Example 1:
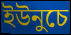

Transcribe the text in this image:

ইউনুচে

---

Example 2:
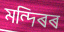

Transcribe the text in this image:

মন্দিৰৰ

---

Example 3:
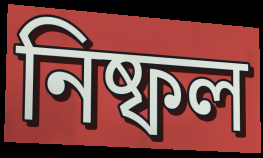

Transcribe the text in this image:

নিষ্ফল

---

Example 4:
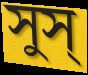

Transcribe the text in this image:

সুস্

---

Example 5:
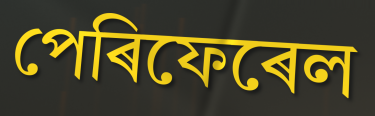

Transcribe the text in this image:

পেৰিফেৰেল